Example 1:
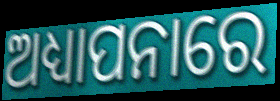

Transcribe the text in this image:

ଅଧ୍ୟାପନାରେ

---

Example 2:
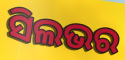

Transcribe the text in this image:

ସିଲଭର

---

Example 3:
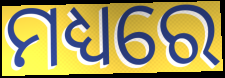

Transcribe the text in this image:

ମଧ୍ୟରେ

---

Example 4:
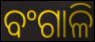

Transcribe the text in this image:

ବଂଗାଳି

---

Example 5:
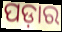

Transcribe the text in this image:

ପଡ଼ାର